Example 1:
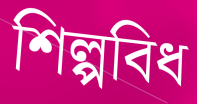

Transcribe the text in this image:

শিল্পবিধ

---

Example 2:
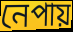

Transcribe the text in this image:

নেপায়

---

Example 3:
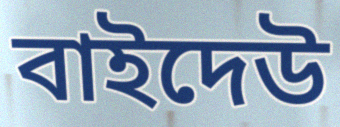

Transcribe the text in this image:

বাইদেউ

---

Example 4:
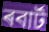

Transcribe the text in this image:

ৰবাৰ্ট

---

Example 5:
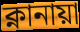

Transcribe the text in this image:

ক্নানায়া